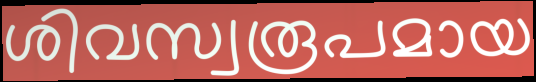
ശിവസ്വരൂപമായ